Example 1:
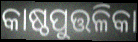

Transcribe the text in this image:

କାଷ୍ଠପୁତ୍ତଳିକା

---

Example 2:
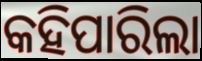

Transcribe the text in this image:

କହିପାରିଲା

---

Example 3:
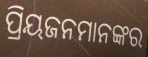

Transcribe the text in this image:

ପ୍ରିୟଜନମାନଙ୍କର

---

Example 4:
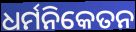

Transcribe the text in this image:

ଧର୍ମନିକେତନ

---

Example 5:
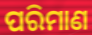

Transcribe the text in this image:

ପରିମାଣ